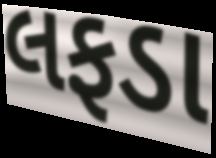
લફડા